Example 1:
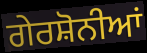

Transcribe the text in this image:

ਗੇਰਸ਼ੋਨੀਆਂ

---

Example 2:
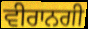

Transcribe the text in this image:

ਵੀਰਾਨਗੀ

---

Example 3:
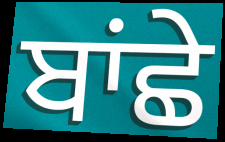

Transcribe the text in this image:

ਬਾਂਛੇ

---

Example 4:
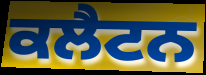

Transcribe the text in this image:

ਕਲੈਟਨ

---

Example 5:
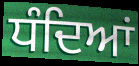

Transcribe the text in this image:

ਧੰਦਿਆਂ